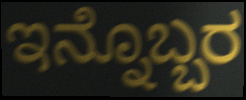
ಇನ್ನೊಬ್ಬರ